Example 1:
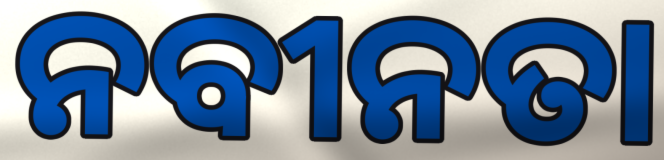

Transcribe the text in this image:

ନବୀନତା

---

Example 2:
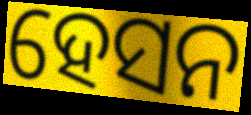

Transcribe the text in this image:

ହେସନ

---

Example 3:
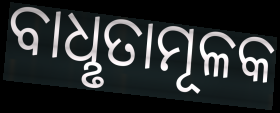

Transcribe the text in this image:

ବାଧୢତାମୂଳକ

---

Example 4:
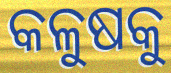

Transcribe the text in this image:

କଳୁଷକୁ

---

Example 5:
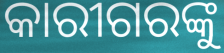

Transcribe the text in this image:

କାରୀଗରଙ୍କୁ